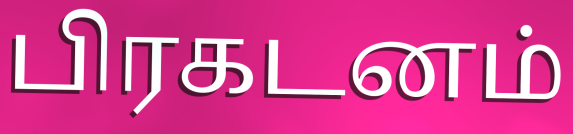
பிரகடனம்